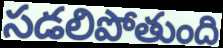
సడలిపోతుంది